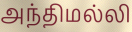
அந்திமல்லி